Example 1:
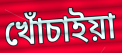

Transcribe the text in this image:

খোঁচাইয়া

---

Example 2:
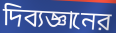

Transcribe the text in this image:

দিব্যজ্ঞানের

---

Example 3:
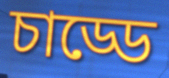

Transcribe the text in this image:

চাড্ডে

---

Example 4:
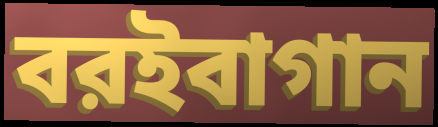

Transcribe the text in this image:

বরইবাগান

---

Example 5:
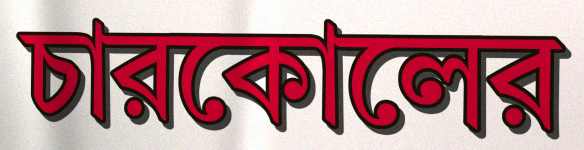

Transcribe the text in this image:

চারকোলের